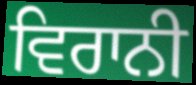
ਵਿਰਾਨੀ